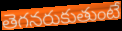
తెగనరుకుతుంటే